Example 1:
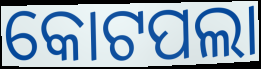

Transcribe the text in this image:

କୋଟପଲା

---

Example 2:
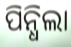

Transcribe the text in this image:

ପିନ୍ଧିଲା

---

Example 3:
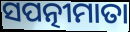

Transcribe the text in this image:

ସପତ୍ନୀମାତା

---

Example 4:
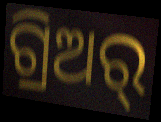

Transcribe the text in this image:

ଗ୍ରିଅର୍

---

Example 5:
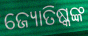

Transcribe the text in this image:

ଜ୍ୟୋତିଷ୍କଙ୍କ